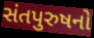
સંતપુરુષનો